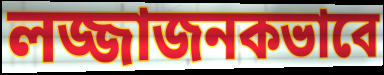
লজ্জাজনকভাবে